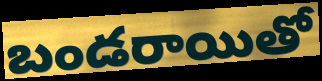
బండరాయితో